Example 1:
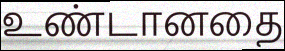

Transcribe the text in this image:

உண்டானதை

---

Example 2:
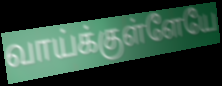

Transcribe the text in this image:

வாய்க்குள்ளேயே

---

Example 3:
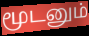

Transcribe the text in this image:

மூடனும்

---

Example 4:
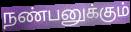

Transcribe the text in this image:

நண்பனுக்கும்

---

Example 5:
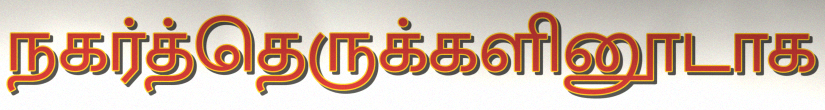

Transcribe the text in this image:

நகர்த்தெருக்களினூடாக